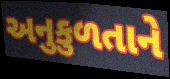
અનુકુળતાને